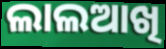
ଲାଲଆଖି